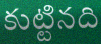
కుట్టినది